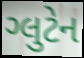
ગ્લુટેન